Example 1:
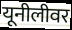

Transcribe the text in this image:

यूनीलीवर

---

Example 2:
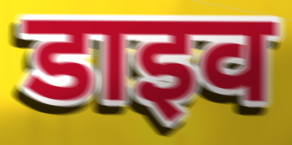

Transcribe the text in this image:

डाइव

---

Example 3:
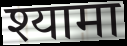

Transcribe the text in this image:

श्‍यामा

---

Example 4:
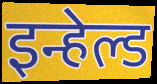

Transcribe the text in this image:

इन्हेल्ड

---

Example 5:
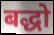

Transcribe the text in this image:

बद्धो